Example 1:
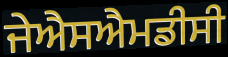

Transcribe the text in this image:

ਜੇਐਸਐਮਡੀਸੀ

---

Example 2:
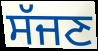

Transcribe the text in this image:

ਸੱਜਣ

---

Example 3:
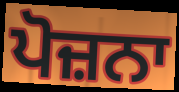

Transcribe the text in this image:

ਪੋਜ਼ਨਾ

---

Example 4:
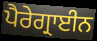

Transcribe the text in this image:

ਪੈਰੇਗ੍ਰਾਈਨ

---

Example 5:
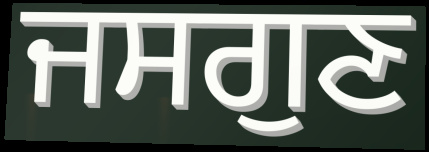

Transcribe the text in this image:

ਜਸਗੁਣ